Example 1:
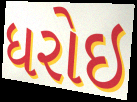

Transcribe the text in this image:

ધરોઇ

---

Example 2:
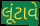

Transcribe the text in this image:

લૂંટાવે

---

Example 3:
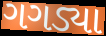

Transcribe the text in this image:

ગગડ્યા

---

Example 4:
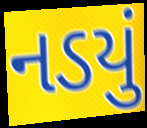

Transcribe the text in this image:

નડયું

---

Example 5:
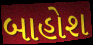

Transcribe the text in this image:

બાહોશ